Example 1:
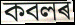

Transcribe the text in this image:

কবলৰ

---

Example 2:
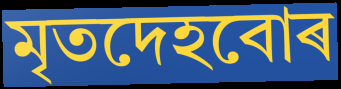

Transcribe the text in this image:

মৃতদেহবোৰ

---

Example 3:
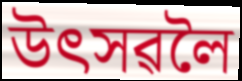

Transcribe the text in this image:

উৎসৱলৈ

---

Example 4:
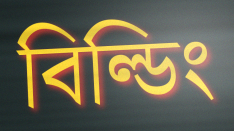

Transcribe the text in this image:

বিল্ডিং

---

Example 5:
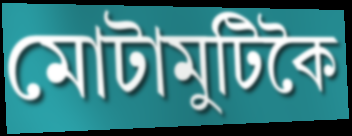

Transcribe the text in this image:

মোটামুটিকৈ